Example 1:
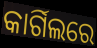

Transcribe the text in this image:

କାର୍ଗିଲରେ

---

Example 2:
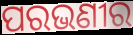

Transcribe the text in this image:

ପରଭଣୀର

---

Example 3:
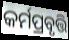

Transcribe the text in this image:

କର୍ମପ୍ରବୃତ୍ତି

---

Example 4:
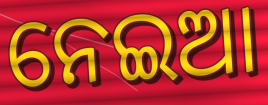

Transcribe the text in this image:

ନେଇଆ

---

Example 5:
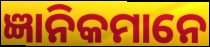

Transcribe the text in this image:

ଜ୍ଞାନିକମାନେ